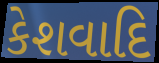
કેશવાદિ